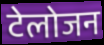
टेलोजन